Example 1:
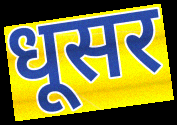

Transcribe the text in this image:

धूसर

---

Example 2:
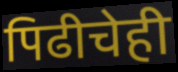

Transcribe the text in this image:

पिढीचेही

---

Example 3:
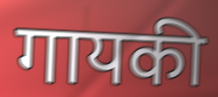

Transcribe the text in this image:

गायकी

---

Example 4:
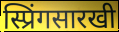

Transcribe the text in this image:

स्प्रिंगसारखी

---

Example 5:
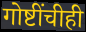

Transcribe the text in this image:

गोष्टींचीही